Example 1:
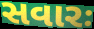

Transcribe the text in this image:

સવારઃ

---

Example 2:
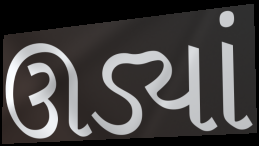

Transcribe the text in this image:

ઊડ્યાં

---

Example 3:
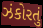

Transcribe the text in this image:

ઝંકોરતું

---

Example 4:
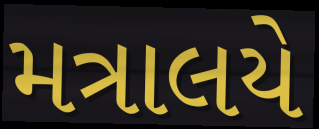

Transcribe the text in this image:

મત્રાલયે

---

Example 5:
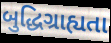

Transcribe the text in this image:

બુદ્ધિગ્રાહ્યતા